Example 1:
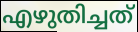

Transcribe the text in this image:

എഴുതിച്ചത്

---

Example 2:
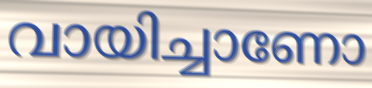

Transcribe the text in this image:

വായിച്ചാണോ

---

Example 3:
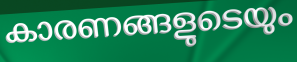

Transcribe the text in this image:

കാരണങ്ങളുടെയും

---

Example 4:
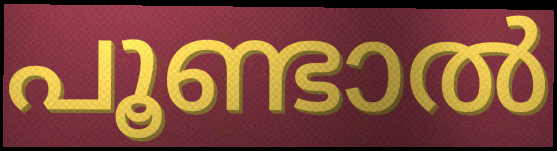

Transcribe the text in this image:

പൂണ്ടാൽ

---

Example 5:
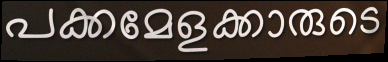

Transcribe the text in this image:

പക്കമേളക്കാരുടെ